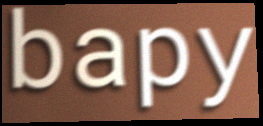
bapy